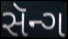
સૅન્ગ